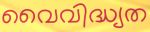
വൈവിദ്ധ്യത